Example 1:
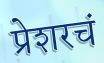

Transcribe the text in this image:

प्रेशरचं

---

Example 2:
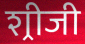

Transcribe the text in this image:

श्रीजी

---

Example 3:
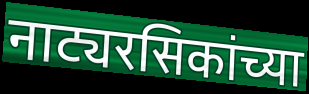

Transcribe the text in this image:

नाट्यरसिकांच्या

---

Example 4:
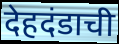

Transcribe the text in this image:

देहदंडाची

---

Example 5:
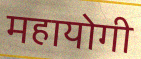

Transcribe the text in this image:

महायोगी